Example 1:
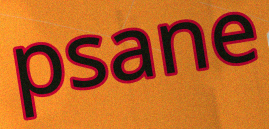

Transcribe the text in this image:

psane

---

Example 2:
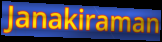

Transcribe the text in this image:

Janakiraman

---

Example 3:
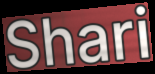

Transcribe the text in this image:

Shari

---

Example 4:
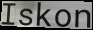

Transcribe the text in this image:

Iskon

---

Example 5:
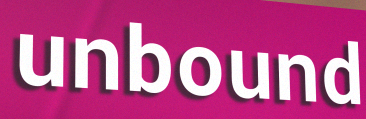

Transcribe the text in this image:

unbound